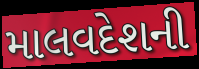
માલવદેશની